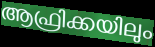
ആഫ്രിക്കയിലും